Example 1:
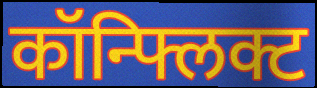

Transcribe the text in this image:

कॉन्फ्लिक्ट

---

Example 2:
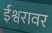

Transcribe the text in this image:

ईश्वरावर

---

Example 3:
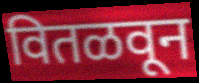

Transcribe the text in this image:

वितळवून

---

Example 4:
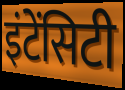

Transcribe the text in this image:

इंटेंसिटी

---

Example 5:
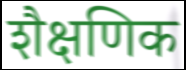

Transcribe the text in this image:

शैक्षणिक